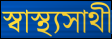
স্বাস্থ্যসাথী